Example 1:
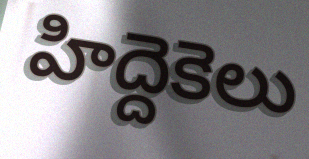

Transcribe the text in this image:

హిద్దెకెలు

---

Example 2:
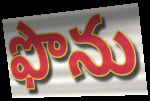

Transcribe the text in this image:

ఫొను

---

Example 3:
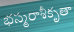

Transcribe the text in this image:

భస్మరాశీకృతా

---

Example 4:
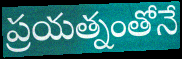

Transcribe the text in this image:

ప్రయత్నంతోనే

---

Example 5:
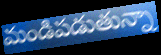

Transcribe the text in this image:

మండిపడుతున్నా